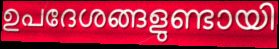
ഉപദേശങ്ങളുണ്ടായി